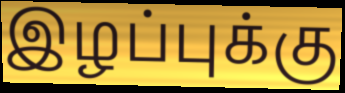
இழப்புக்கு